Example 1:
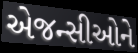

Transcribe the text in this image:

એજન્સીઓને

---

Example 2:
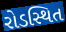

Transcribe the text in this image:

રોડસ્થિત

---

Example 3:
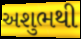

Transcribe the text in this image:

અશુભથી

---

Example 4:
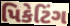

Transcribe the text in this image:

પિકેટિંગ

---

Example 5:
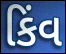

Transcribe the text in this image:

કિંવ